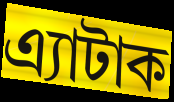
এ্যাটাক